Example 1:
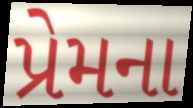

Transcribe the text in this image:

પ્રેમના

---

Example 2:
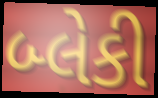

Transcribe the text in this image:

બ્લેકી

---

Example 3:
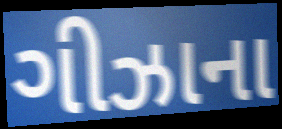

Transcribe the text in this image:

ગીઝાના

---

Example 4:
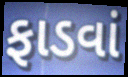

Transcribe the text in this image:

ફાડવાં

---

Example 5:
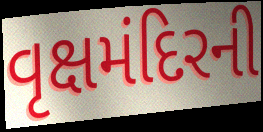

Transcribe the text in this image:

વૃક્ષમંદિરની